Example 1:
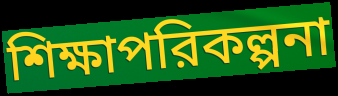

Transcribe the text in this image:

শিক্ষাপরিকল্পনা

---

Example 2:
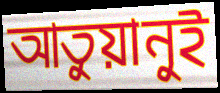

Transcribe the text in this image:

আতুয়ানুই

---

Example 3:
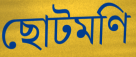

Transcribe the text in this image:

ছোটমণি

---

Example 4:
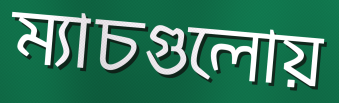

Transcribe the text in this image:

ম্যাচগুলোয়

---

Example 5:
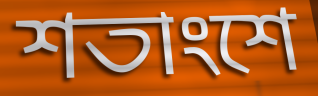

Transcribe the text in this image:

শতাংশে